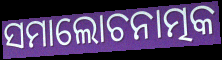
ସମାଲୋଚନାତ୍ମକ